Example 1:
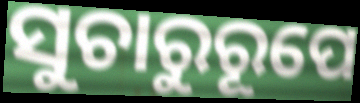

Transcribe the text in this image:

ସୁଚାରୁରୂପେ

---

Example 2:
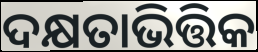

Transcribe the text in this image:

ଦକ୍ଷତାଭିତ୍ତିକ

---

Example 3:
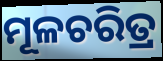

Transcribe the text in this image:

ମୂଳଚରିତ୍ର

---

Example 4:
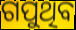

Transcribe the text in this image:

ଗପୁଥିବ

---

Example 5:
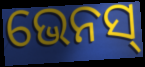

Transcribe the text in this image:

ଭେନସ୍